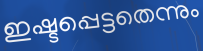
ഇഷ്ടപ്പെട്ടതെന്നും